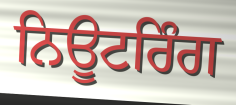
ਨਿਊਟਰਿੰਗ